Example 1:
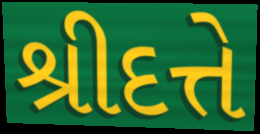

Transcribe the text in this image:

શ્રીદત્તે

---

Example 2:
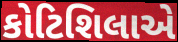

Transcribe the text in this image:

કોટિશિલાએ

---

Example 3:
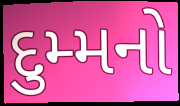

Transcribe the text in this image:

દુમ્મનો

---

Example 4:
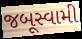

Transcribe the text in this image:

જબૂસ્વામી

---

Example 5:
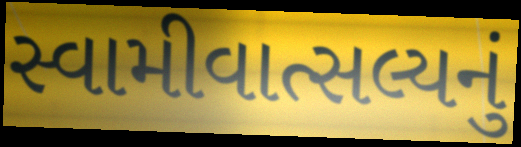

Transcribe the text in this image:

સ્વામીવાત્સલ્યનું